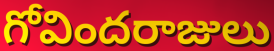
గోవిందరాజులు